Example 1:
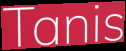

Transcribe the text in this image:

Tanis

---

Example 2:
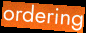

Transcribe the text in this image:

ordering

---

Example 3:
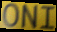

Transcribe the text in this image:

ONI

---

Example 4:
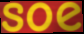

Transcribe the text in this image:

soe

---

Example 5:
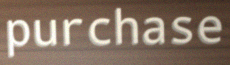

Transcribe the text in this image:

purchase